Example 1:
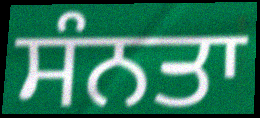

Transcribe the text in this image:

ਸੰਨਤਾ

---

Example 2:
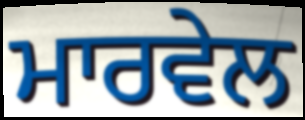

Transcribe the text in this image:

ਮਾਰਵੇਲ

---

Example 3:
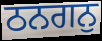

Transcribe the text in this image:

ਠਨਗਨੁ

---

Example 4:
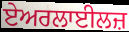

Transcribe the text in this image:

ਏਅਰਲਾਈਲਜ਼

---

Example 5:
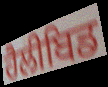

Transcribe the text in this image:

ਹੈਲੀਬਿਡ